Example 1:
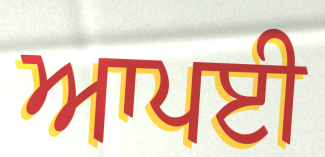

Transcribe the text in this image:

ਆਪਈ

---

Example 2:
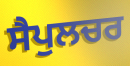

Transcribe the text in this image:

ਸੈਪੁਲਚਰ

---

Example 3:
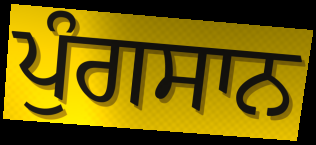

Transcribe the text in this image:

ਪੁੰਗਸਾਨ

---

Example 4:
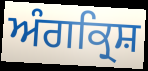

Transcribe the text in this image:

ਅੰਗਕ੍ਰਿਸ਼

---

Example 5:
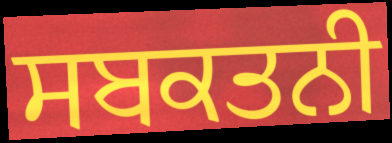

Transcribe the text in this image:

ਸਬਕਤਨੀ